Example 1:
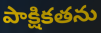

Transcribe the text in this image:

పాక్షికతను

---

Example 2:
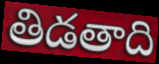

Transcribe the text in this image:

తిడతాది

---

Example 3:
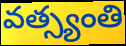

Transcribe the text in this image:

వత్స్యంతి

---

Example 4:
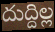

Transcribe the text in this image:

దుద్దిల్ల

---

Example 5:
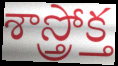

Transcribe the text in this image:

శాస్త్రోక్త